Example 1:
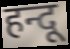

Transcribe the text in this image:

हन्दू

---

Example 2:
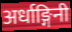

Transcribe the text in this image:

अर्धाङ्गिनी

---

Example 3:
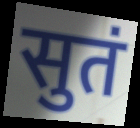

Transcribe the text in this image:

सुतं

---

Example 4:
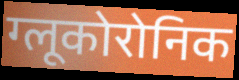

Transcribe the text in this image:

ग्लूकोरोनिक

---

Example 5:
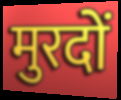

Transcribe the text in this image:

मुरदों